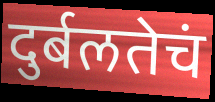
दुर्बलतेचं